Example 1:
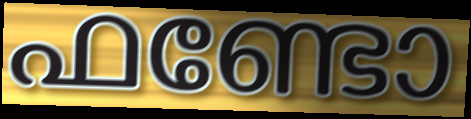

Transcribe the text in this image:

ഫണ്ടോ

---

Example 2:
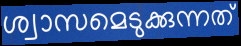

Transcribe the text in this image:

ശ്വാസമെടുക്കുന്നത്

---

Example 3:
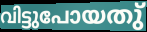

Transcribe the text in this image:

വിട്ടുപോയതു്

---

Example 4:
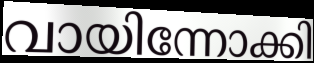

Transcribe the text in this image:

വായിന്നോക്കി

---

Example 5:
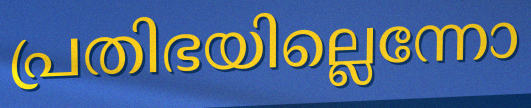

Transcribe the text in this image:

പ്രതിഭയില്ലെന്നോ